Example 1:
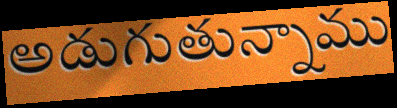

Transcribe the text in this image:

అడుగుతున్నాము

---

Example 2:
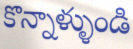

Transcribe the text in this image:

కొన్నాళ్ళుండి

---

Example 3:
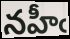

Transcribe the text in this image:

నహీఁ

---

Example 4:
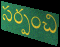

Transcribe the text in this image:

సర్పంచి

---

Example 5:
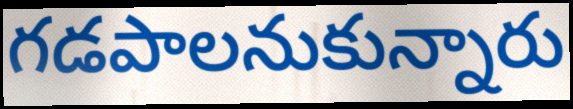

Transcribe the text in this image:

గడపాలనుకున్నారు